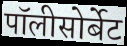
पॉलीसोर्बेट